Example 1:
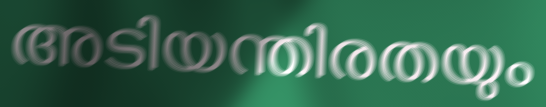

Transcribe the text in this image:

അടിയന്തിരതയും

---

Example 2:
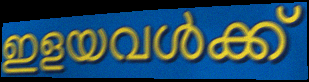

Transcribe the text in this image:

ഇളയവൾക്ക്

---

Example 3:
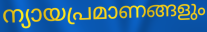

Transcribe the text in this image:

ന്യായപ്രമാണങ്ങളും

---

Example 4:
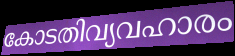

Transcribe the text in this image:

കോടതിവ്യവഹാരം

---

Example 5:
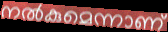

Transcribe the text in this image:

നൽകുമെന്നാണ്